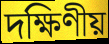
দক্ষিণীয়